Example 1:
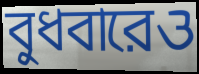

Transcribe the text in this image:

বুধবারেও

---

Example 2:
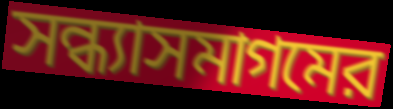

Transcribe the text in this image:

সন্ধ্যাসমাগমের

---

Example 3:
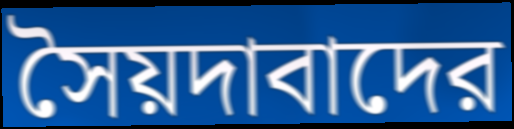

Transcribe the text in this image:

সৈয়দাবাদের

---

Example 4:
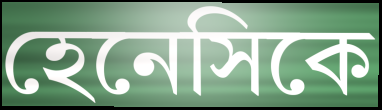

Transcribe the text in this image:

হেনেসিকে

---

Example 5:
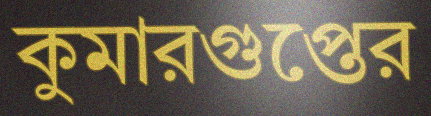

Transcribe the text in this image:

কুমারগুপ্তের